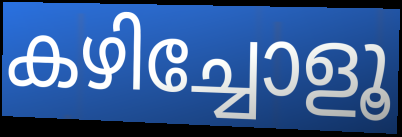
കഴിച്ചോളൂ